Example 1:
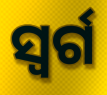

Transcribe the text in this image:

ସ୍ବର୍ଗ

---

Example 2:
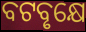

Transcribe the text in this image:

ବଟବୃକ୍ଷେ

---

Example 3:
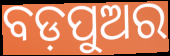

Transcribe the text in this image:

ବଡ଼ପୁଅର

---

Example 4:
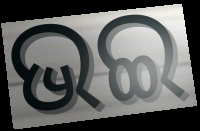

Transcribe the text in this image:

ଭଇ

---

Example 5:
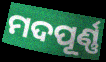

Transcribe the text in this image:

ମଦପୂର୍ଣ୍ଣ